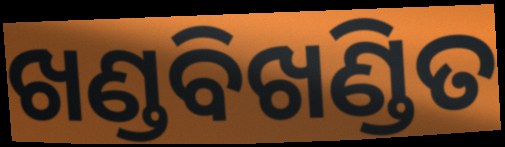
ଖଣ୍ଡବିଖଣ୍ଡିତ